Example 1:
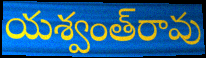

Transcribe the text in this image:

యశ్వంత్‌రావు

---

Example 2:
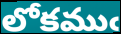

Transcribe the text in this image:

లోకముఁ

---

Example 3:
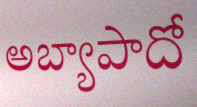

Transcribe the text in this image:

అబ్యాపాదో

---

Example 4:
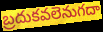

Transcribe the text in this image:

బ్రదుకవలెనుగదా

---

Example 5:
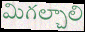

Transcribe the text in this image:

మిగల్చాలి